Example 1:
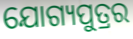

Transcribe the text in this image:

ଯୋଗ୍ୟପୁତ୍ରର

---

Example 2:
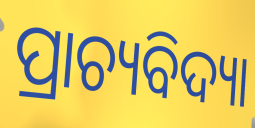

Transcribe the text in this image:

ପ୍ରାଚ୍ୟବିଦ୍ୟା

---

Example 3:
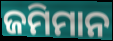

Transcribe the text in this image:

ଜମିମାନ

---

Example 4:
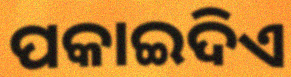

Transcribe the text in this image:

ପକାଇଦିଏ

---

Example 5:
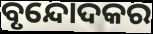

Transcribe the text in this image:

ବୃନ୍ଦୋଦକର